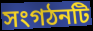
সংগঠনটি